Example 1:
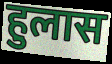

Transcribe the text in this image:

हुलास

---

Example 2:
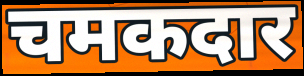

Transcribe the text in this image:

चमकदार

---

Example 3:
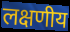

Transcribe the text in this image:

लक्षणीय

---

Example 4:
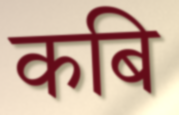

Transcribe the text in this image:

कबि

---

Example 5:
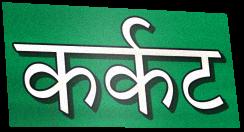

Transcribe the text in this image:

कर्कट